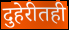
दुहेरीतही